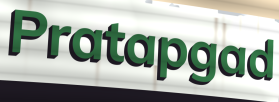
Pratapgad